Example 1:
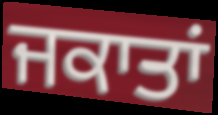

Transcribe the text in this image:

ਜਕਾਤਾਂ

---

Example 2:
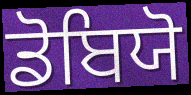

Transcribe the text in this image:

ਡੋਬਿਯੋ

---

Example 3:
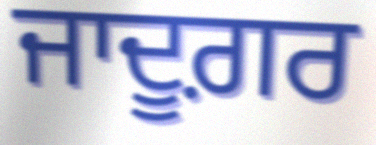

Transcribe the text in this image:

ਜਾਦੂਗ਼ਰ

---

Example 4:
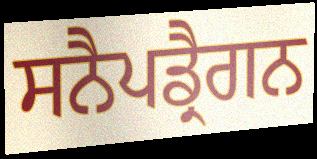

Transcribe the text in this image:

ਸਨੈਪਡ੍ਰੈਗਨ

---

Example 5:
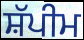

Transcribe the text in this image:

ਸ਼ੱਪੀਮ